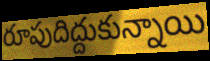
రూపుదిద్దుకున్నాయి